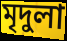
মৃদুলা